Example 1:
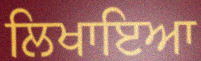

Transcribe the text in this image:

ਲਿਖਾਇਆ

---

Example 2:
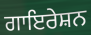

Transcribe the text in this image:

ਗਾਇਰੇਸ਼ਨ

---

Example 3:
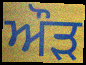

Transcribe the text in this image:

ਔਡ਼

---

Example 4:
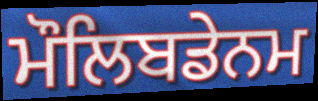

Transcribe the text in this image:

ਮੌਲਿਬਡੇਨਮ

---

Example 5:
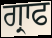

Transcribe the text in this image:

ਗ੍ਰਾਫ